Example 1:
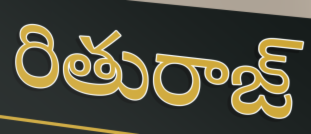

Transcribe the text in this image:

రితురాజ్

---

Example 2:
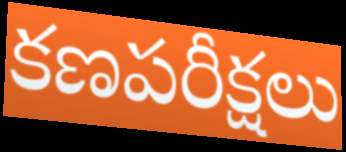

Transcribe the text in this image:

కణపరీక్షలు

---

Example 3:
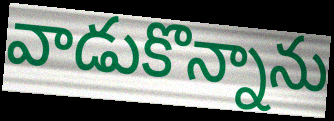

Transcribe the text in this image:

వాడుకొన్నాను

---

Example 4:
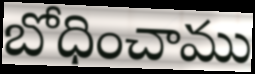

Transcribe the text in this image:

బోధించాము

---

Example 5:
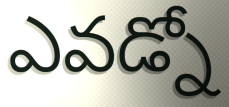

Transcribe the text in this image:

ఎవడ్నో